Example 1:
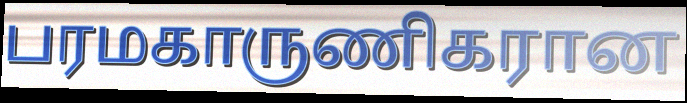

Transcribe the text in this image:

பரமகாருணிகரான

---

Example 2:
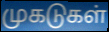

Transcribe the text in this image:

முகடுகள்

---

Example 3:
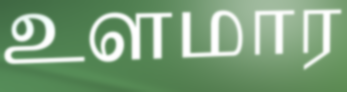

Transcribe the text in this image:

உளமார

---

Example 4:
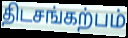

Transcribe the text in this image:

திடசங்கற்பம்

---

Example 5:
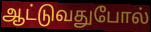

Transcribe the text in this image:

ஆட்டுவதுபோல்